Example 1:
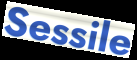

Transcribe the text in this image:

Sessile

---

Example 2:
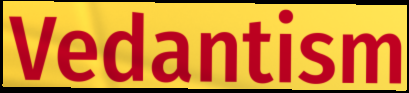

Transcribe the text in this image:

Vedantism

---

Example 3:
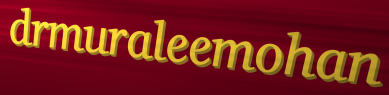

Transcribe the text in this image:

drmuraleemohan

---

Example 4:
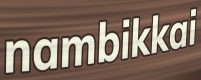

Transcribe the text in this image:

nambikkai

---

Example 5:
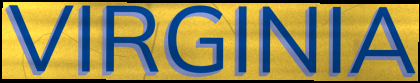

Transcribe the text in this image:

VIRGINIA